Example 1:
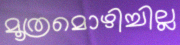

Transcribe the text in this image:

മൂത്രമൊഴിച്ചില്ല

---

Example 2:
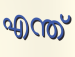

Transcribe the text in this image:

എന്ത്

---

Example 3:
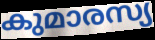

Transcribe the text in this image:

കുമാരസ്യ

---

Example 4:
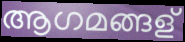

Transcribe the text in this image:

ആഗമങ്ങള്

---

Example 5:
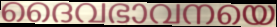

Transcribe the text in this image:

ദൈവഭാവനയെ